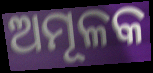
ଅମୂଳକ